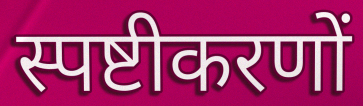
स्पष्टीकरणों